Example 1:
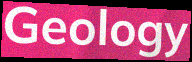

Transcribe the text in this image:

Geology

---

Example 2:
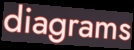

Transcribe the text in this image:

diagrams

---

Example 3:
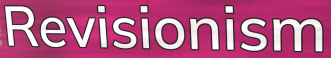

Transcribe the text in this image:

Revisionism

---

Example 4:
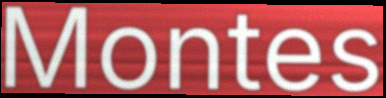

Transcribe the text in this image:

Montes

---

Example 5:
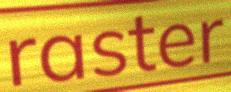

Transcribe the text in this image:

raster